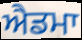
ਐਡਮਾ